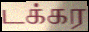
டக்கர